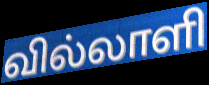
வில்லாளி